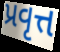
પ્રવૃત્ત